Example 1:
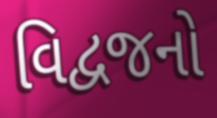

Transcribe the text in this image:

વિદ્વજનો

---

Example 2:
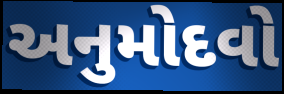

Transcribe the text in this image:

અનુમોદવો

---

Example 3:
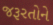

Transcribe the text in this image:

જરૂરતોને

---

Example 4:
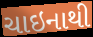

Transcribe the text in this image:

ચાઇનાથી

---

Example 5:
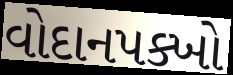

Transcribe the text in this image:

વોદાનપક્ખો